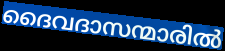
ദൈവദാസന്മാരിൽ